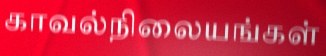
காவல்நிலையங்கள்